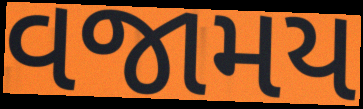
વજામય